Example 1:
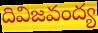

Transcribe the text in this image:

దివిజవంద్య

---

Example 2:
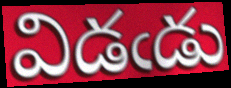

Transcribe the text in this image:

విడఁడు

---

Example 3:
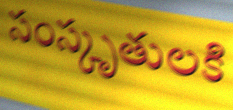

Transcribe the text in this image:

సంస్కృతులకి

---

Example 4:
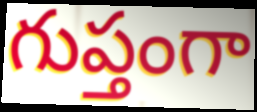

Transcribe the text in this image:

గుప్తంగా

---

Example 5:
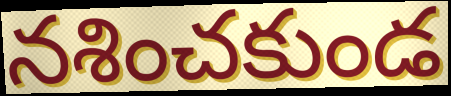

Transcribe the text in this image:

నశించకుండ